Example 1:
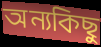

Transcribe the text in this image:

অন্যকিছু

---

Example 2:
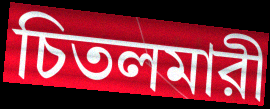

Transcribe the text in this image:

চিতলমারী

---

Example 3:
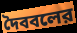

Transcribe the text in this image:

দৈববলের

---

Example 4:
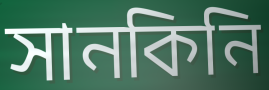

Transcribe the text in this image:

সানকিনি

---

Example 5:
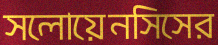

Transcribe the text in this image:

সলোয়েনসিসের